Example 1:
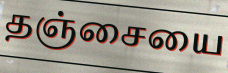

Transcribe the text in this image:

தஞ்சையை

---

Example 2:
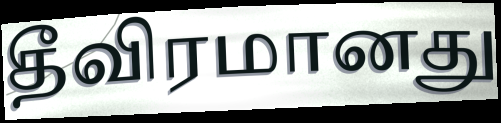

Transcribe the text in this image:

தீவிரமானது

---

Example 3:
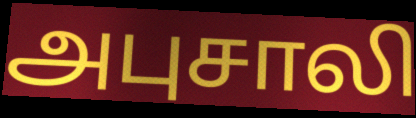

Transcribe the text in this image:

அபுசாலி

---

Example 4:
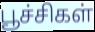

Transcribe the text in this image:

பூச்சிகள்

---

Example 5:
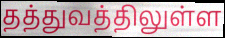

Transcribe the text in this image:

தத்துவத்திலுள்ள